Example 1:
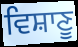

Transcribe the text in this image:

ਵਿਸ਼ਾਣੂ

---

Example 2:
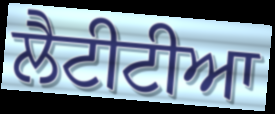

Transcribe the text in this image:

ਲੈਟੀਟੀਆ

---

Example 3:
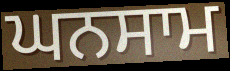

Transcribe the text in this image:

ਘਨਸਾਮ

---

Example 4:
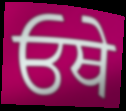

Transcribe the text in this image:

ਓਥੇ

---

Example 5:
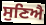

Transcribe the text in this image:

ਸੁਣਿਐ